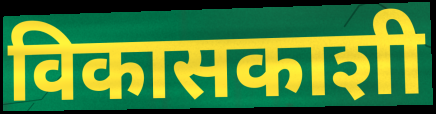
विकासकाशी